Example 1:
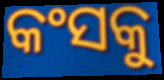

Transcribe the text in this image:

କଂସକୁ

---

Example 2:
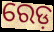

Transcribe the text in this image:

ରେଡ଼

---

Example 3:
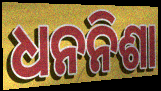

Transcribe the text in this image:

ଧନନିଶା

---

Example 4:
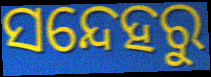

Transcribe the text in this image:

ସନ୍ଦେହରୁ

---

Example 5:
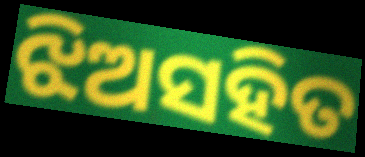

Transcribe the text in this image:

ଝିଅସହିତ